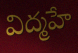
విద్మహే